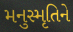
મનુસ્મૃતિને